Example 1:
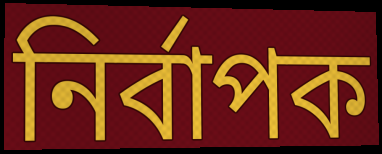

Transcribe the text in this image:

নির্বাপক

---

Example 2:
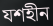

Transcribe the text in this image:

যশহীন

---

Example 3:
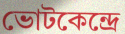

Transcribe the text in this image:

ভোটকেন্দ্রে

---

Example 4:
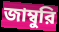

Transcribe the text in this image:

জাম্বুরি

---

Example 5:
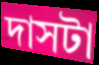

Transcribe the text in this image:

দাসটা